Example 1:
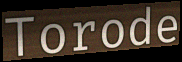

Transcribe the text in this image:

Torode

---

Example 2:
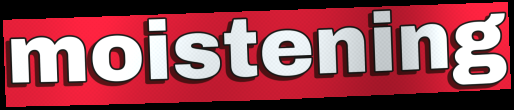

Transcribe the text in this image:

moistening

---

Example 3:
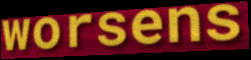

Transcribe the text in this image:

worsens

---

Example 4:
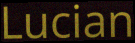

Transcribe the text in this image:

Lucian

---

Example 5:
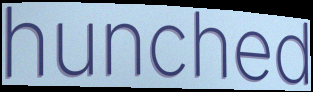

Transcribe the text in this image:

hunched